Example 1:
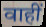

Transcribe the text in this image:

वाहीं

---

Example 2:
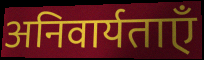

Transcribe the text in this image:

अनिवार्यताएँ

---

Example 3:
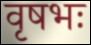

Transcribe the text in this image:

वृषभः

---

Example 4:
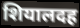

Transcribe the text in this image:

शियालदह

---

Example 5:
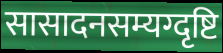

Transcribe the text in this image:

सासादनसम्यग्दृष्टि